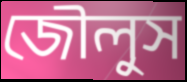
জৌলুস